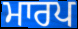
ਮਾਰਪ